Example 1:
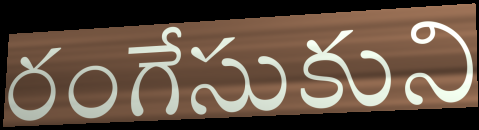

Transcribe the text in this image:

రంగేసుకుని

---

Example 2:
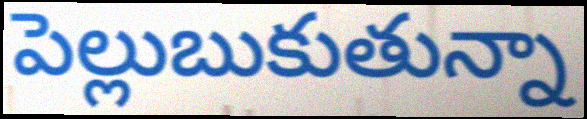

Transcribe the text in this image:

పెల్లుబుకుతున్నా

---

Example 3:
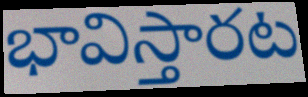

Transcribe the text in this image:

భావిస్తారట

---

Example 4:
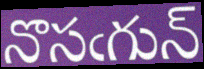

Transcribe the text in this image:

నొసఁగున్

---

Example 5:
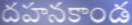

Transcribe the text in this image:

దహనకాండ